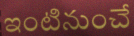
ఇంటినుంచే